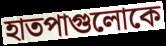
হাতপাগুলোকে